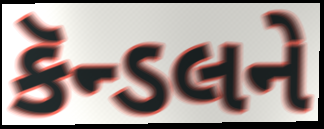
કૅન્ડલને